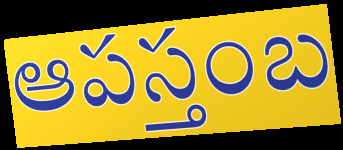
ఆపస్తంబ